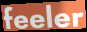
feeler